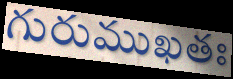
గురుముఖతః